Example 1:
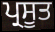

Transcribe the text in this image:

ਪ੍ਰਸੂਤ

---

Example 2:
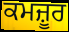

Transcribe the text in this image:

ਕਮਜ਼ੂਰ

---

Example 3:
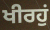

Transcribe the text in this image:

ਖੀਰਹੁਂ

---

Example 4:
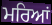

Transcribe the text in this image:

ਮਰਿਆਂ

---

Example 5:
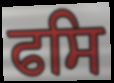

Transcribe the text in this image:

ਫਸਿ